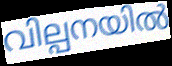
വില്പനയിൽ